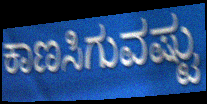
ಕಾಣಸಿಗುವಷ್ಟು